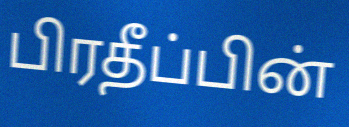
பிரதீப்பின்